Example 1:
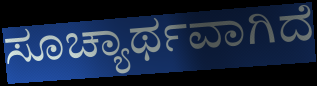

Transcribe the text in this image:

ಸೂಚ್ಯಾರ್ಥವಾಗಿದೆ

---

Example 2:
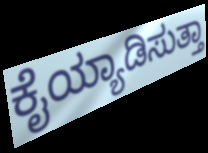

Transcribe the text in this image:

ಕೈಯ್ಯಾಡಿಸುತ್ತಾ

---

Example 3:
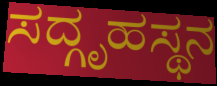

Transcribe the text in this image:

ಸದ್ಗೃಹಸ್ಥನ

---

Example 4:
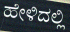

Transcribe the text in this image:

ಹೇಳಿದಲ್ಲಿ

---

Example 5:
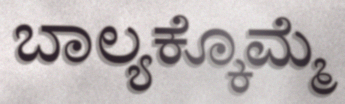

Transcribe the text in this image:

ಬಾಲ್ಯಕ್ಕೊಮ್ಮೆ